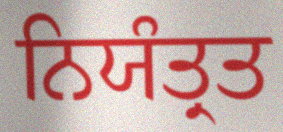
ਨਿਯੰਤ੍ਰਤ